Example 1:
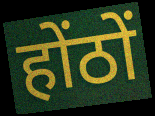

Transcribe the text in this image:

होंठों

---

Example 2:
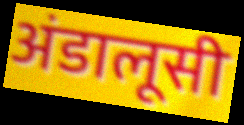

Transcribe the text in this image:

अंडालूसी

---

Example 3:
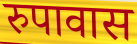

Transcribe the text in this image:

रुपावास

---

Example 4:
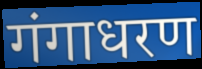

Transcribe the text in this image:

गंगाधरण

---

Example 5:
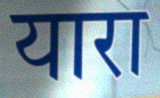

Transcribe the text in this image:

यारा